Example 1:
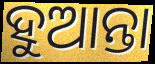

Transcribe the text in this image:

ହୁଆନ୍ତା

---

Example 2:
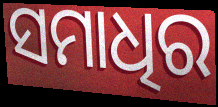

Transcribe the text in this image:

ସମାଧିର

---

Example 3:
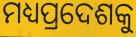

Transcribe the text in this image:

ମଧ୍ୟପ୍ରଦେଶକୁ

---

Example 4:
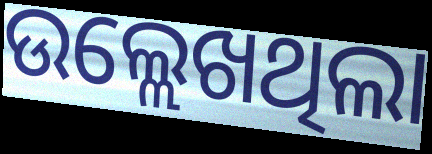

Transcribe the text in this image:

ଉଲ୍ଲେଖଥିଲା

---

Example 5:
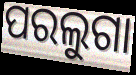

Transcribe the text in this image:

ପରଲୁଗା